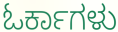
ಓರ್ಕಾಗಳು